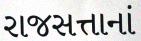
રાજસત્તાનાં